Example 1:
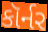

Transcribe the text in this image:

કૉર્નર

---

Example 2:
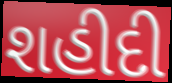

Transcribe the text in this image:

શહીદી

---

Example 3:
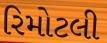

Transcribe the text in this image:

રિમોટલી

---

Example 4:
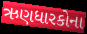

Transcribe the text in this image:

ઋણધારકોના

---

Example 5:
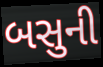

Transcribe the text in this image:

બસુની